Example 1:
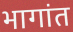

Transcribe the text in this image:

भागांत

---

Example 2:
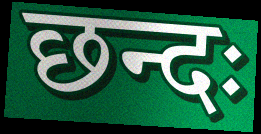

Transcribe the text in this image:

छन्दः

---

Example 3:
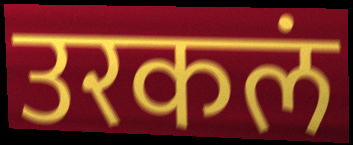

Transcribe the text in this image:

उरकलं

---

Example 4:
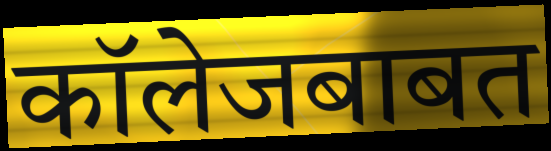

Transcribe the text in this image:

कॉलेजबाबत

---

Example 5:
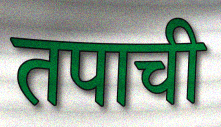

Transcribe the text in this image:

तपाची